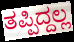
ತಪ್ಪಿದ್ದಲ್ಲ